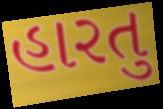
હારતુ